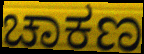
ಚಾಕಣ